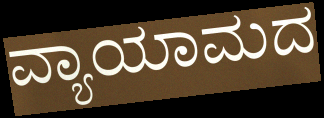
ವ್ಯಾಯಾಮದ